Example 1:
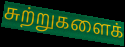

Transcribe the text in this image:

சுற்றுகளைக்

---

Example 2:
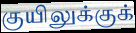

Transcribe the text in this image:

குயிலுக்குக்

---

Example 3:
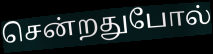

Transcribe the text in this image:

சென்றதுபோல்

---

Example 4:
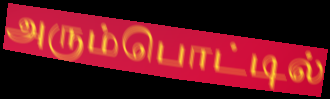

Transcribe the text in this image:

அரும்பொட்டில்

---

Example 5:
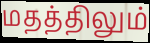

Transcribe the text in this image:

மதத்திலும்